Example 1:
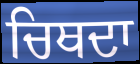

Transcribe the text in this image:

ਚਿਥਦਾ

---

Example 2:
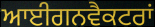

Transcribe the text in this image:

ਆਈਗਨਵੈਕਟਰਾਂ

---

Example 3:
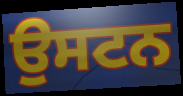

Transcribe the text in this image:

ਉਸਟਨ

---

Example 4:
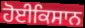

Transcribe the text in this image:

ਹੋਈਕਿਸਾਨ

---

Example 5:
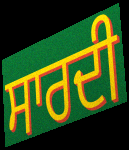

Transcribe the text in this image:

ਸਾਰਦੀ